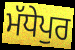
ਮੱਧੇਪੁਰ